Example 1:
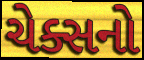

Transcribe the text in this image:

ચેક્સનો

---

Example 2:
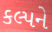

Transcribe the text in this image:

કલ્પને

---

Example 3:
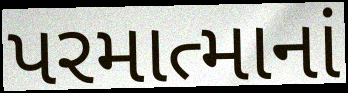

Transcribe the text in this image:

પરમાત્માનાં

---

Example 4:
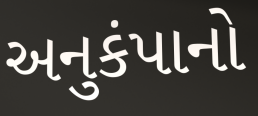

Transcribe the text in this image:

અનુકંપાનો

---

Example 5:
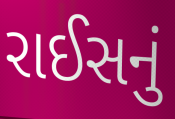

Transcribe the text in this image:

રાઈસનું